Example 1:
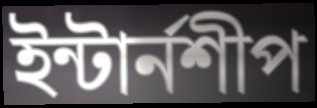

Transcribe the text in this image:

ইন্টার্নশীপ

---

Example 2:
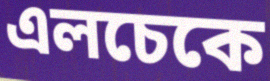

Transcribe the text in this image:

এলচেকে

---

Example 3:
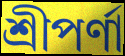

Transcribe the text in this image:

শ্রীপর্ণা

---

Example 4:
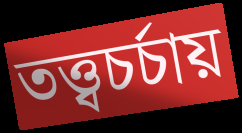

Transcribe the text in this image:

তত্ত্বচর্চায়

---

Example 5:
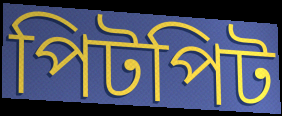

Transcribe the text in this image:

পিটপিট